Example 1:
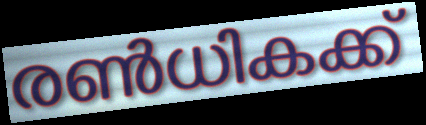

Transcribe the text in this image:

രൺധികക്ക്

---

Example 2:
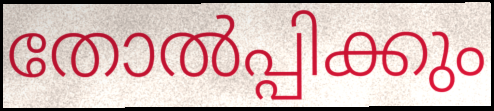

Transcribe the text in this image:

തോൽപ്പിക്കും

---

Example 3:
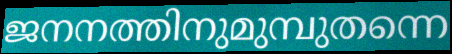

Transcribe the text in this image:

ജനനത്തിനുമുമ്പുതന്നെ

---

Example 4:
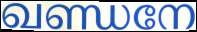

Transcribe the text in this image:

ഖണ്ഡനേ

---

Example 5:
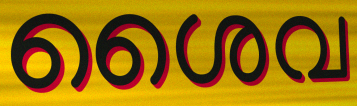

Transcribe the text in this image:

ശൈവ